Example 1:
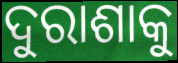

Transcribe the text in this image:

ଦୁରାଶାକୁ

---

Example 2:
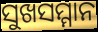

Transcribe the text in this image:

ସୁଖସମ୍ମାନ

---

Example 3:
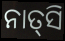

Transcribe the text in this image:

ନାତ୍‌ସି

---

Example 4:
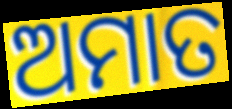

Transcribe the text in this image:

ଅମାତ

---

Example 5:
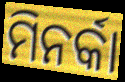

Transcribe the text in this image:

ମିନର୍କା